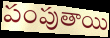
పంపుతాయి